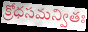
క్రోధసమన్వితః